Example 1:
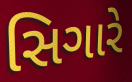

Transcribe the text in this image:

સિગારે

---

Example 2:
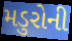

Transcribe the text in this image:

મડુરોની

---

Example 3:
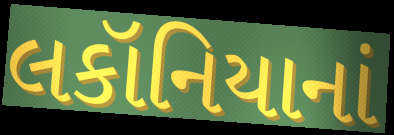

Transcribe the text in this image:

લકૉનિયાનાં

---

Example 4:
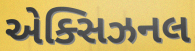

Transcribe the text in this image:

એક્સિઝનલ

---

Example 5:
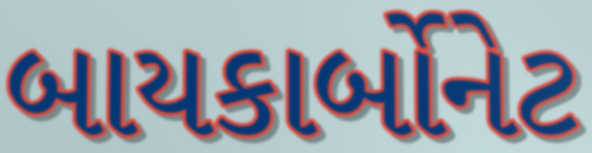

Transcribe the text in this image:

બાયકાર્બોનેટ